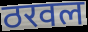
ठरवल